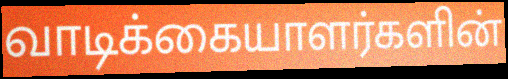
வாடிக்கையாளர்களின்